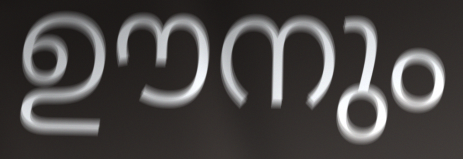
ഊനും